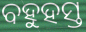
ବହୁହସ୍ତ